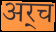
अर्च